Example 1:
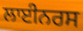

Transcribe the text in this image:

ਲਾਈਨਰਸ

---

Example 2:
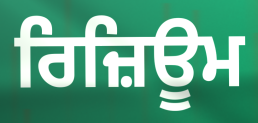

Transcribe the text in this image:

ਰਿਜ਼ਿਊਮ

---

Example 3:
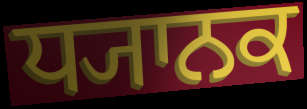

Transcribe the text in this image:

ਧ੍ਯਾਨਕ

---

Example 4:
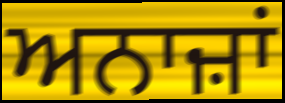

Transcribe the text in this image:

ਅਨਾਜ਼ਾਂ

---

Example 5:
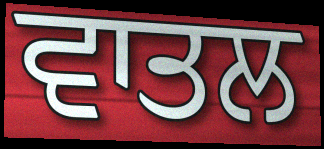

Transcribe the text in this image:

ਵਾਤਲ